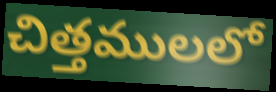
చిత్తములలో